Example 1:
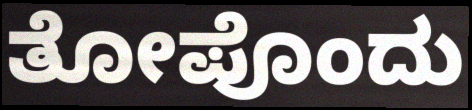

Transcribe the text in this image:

ತೋಪೊಂದು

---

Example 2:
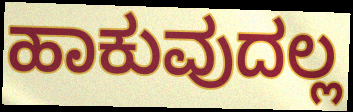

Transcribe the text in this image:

ಹಾಕುವುದಲ್ಲ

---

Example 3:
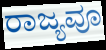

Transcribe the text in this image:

ರಾಜ್ಯವೂ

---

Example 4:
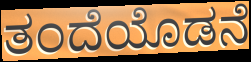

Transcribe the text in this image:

ತಂದೆಯೊಡನೆ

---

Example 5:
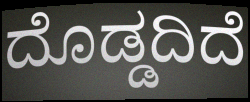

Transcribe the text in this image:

ದೊಡ್ಡದಿದೆ